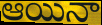
ఆయినా